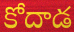
కోదాడ